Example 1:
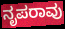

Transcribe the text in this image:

ನೃಪರಾವು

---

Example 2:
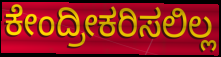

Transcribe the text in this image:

ಕೇಂದ್ರೀಕರಿಸಲಿಲ್ಲ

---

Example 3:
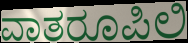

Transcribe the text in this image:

ವಾತರೂಪಿಲಿ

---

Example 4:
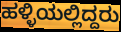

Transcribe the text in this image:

ಹಳ್ಳಿಯಲ್ಲಿದ್ದರು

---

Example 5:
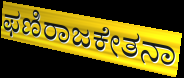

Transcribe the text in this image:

ಫಣಿರಾಜಕೇತನಾ